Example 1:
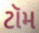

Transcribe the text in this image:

ટૉમ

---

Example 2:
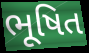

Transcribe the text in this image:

ભૂષિત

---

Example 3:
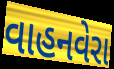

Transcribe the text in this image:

વાહનવેરા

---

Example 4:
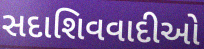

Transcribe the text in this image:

સદાશિવવાદીઓ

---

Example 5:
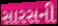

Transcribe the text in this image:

સારસની